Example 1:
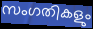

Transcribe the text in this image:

സംഗതികളും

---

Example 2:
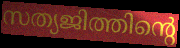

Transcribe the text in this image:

സത്യജിത്തിന്റെ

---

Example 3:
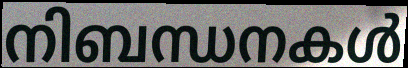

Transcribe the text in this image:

നിബന്ധനകൾ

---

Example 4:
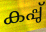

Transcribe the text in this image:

കപ്പു്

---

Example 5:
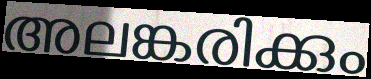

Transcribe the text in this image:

അലങ്കരിക്കും